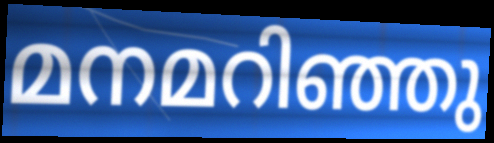
മനമറിഞ്ഞു